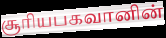
சூரியபகவானின்